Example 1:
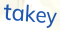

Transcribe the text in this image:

takey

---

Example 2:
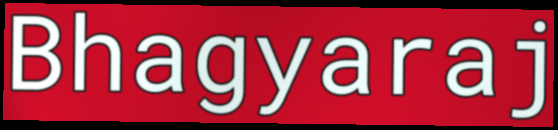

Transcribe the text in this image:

Bhagyaraj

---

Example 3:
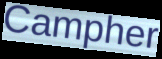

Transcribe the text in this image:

Campher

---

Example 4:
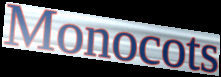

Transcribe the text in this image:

Monocots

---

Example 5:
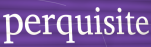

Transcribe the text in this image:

perquisite